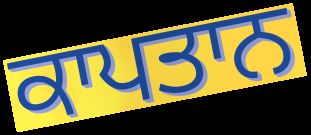
ਕਾਪਤਾਨ